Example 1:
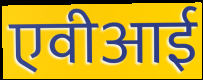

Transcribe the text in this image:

एवीआई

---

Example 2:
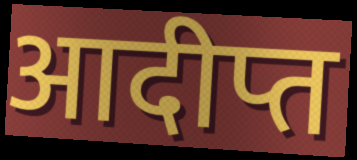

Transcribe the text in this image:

आदीप्त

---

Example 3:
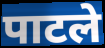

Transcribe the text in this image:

पाटले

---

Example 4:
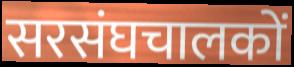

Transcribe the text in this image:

सरसंघचालकों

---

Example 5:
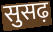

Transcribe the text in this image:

सुसढ़